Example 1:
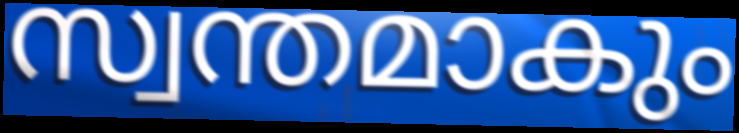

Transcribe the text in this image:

സ്വന്തമാകും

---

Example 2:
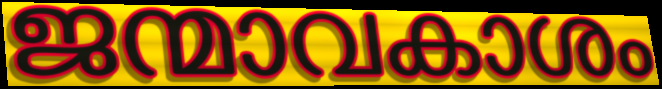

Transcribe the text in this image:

ജന്മാവകാശം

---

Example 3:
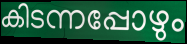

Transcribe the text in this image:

കിടന്നപ്പോഴും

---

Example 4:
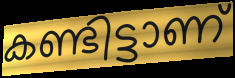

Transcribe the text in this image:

കണ്ടിട്ടാണ്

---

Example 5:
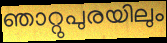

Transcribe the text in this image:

ഞാറ്റുപുരയിലും